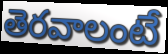
తెరవాలంటే